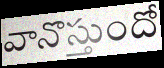
వానొస్తుందో